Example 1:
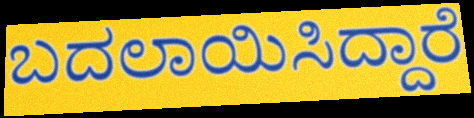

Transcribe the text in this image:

ಬದಲಾಯಿಸಿದ್ದಾರೆ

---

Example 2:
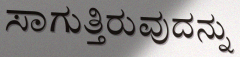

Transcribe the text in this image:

ಸಾಗುತ್ತಿರುವುದನ್ನು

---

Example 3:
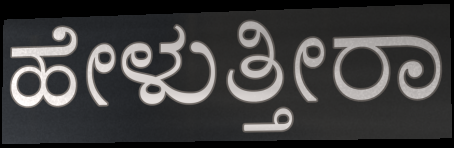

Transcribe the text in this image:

ಹೇಳುತ್ತೀರಾ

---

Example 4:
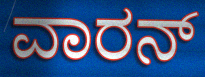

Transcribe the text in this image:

ವಾರನ್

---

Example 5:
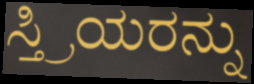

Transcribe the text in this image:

ಸ್ತ್ರಿಯರನ್ನು